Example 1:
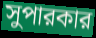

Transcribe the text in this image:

সুপারকার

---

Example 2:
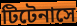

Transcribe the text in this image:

টিটেনাসে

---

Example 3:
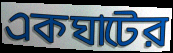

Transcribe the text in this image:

একঘাটের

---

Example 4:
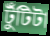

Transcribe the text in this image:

টুঁটিটা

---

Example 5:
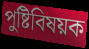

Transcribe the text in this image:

পুষ্টিবিষয়ক